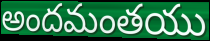
అందమంతయు